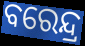
ବରେନ୍ଦ୍ର